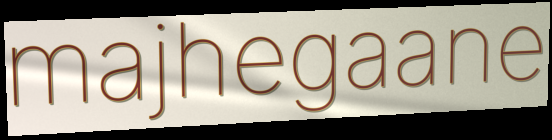
majhegaane